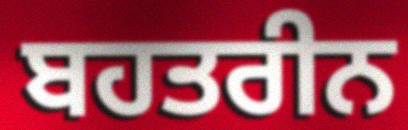
ਬਹਤਰੀਨ